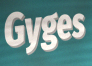
Gyges